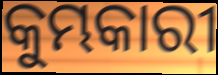
କୁମ୍ଭକାରୀ